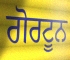
ਗੋਰਟੂਨ